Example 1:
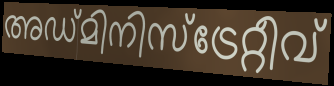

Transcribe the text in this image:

അഡ്മിനിസ്ട്രേറ്റീവ്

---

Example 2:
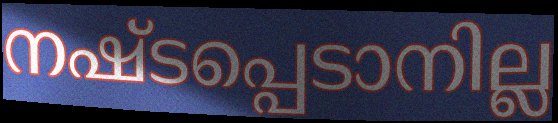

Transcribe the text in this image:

നഷ്ടപ്പെടാനില്ല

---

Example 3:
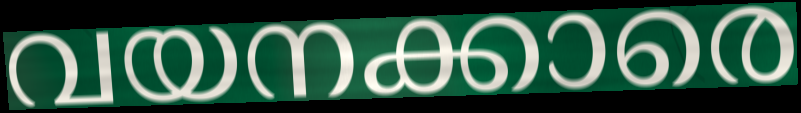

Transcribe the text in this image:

വയനക്കാരെ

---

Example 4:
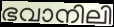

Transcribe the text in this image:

ഭവാനിലി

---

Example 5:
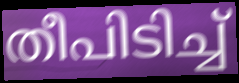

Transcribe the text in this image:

തീപിടിച്ച്